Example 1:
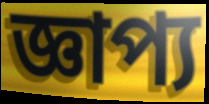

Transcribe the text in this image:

জ্ঞাপ্য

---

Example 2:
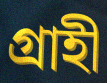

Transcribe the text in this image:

গ্রাহী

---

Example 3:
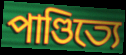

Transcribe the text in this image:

পাণ্ডিত্যে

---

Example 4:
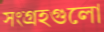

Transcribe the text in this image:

সংগ্রহগুলো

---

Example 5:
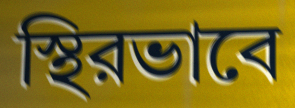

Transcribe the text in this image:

স্থিরভাবে